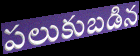
పలుకుబడిన